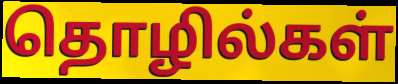
தொழில்கள்